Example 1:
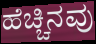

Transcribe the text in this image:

ಹೆಚ್ಚಿನವು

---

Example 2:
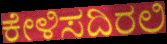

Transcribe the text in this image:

ಕೇಳಿಸದಿರಲಿ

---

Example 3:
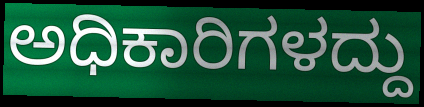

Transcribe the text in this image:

ಅಧಿಕಾರಿಗಳದ್ದು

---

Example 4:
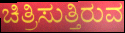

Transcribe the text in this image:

ಚಿತ್ರಿಸುತ್ತಿರುವ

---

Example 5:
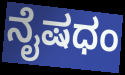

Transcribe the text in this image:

ನೈಷಧಂ